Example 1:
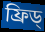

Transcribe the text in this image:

ফ্ৰিড্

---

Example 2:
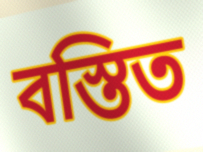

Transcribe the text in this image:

বস্তিত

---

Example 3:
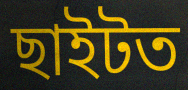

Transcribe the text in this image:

ছাইটত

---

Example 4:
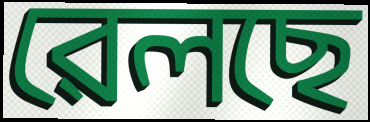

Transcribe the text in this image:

ৱেলছে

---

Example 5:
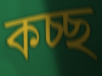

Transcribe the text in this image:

কচ্ছ